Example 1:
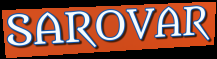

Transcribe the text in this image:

SAROVAR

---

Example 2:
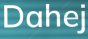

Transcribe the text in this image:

Dahej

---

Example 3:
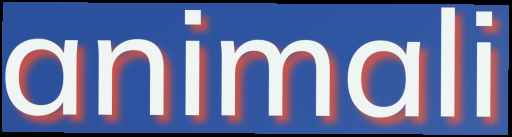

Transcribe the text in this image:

animali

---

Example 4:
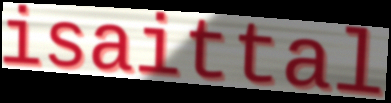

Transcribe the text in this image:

isaittal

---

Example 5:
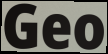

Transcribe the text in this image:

Geo